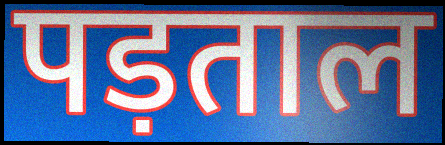
पड़ताल